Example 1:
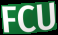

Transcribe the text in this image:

FCU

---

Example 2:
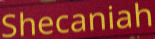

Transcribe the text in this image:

Shecaniah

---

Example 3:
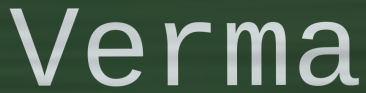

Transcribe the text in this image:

Verma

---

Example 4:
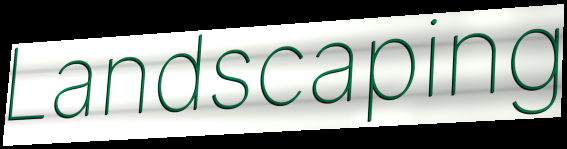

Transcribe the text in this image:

Landscaping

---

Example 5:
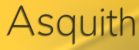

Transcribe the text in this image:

Asquith